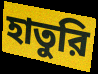
হাতুরি